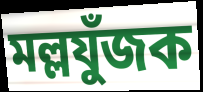
মল্লযুঁজক